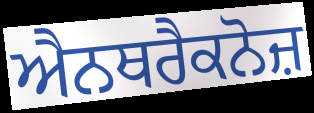
ਐਨਥਰੈਕਨੋਜ਼